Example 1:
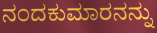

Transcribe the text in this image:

ನಂದಕುಮಾರನನ್ನು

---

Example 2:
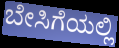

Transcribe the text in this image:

ಬೇಸಿಗೆಯಲ್ಲಿ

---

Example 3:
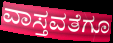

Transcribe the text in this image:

ವಾಸ್ತವತೆಗೂ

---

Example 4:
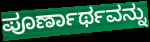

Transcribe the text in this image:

ಪೂರ್ಣಾರ್ಥವನ್ನು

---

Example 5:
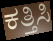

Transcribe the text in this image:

ಕತ್ತಿಸಿ